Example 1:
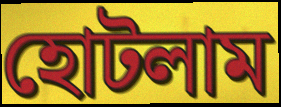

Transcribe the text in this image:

হোটলাম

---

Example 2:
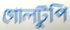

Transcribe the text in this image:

গোলটুপি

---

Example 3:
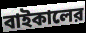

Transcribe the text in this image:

বাইকালের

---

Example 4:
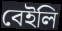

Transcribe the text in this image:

বেইলি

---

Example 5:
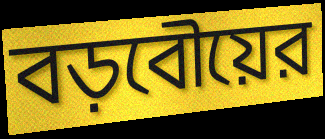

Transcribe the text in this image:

বড়বৌয়ের